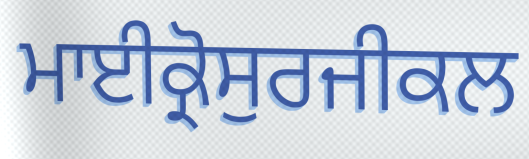
ਮਾਈਕ੍ਰੋਸੁਰਜੀਕਲ